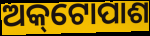
ଅକ୍‌ଟୋପାଶ